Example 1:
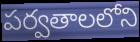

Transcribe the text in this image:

పర్వతాలలోని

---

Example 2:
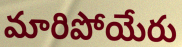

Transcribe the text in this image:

మారిపోయేరు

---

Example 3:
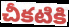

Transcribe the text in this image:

చీకటికి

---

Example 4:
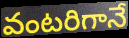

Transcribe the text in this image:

వంటరిగానే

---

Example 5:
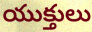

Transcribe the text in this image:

యుక్తులు